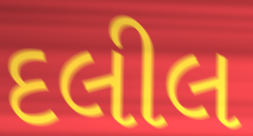
દલીલ